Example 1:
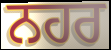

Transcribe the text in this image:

ਨਹਰ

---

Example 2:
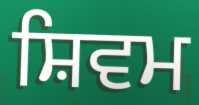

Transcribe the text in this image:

ਸ਼ਿਵਮ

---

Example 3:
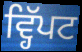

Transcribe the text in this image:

ਵ੍ਹਿੱਪਟ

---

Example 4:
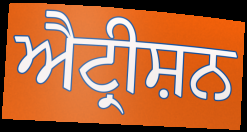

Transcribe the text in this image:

ਐਟ੍ਰੀਸ਼ਨ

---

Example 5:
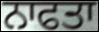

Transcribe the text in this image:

ਨਾਫਤਾ